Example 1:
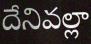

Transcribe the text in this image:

దేనివల్లా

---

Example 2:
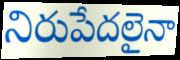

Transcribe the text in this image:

నిరుపేదలైనా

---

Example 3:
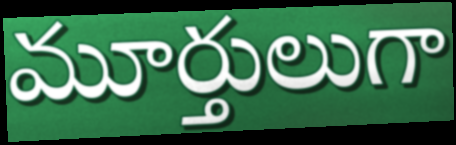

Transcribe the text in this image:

మూర్తులుగా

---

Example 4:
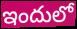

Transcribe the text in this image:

ఇందులో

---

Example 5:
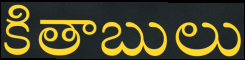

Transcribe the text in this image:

కితాబులు